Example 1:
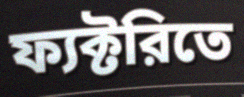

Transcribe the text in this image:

ফ্যক্টরিতে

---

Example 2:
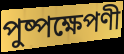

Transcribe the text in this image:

পুষ্পক্ষেপণী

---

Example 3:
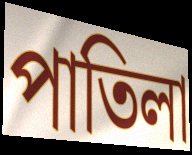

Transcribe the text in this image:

পাতিলা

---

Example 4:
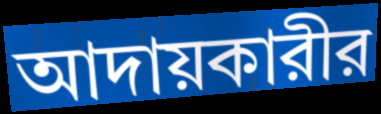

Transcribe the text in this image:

আদায়কারীর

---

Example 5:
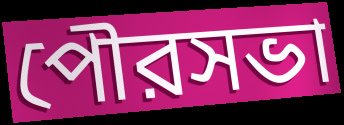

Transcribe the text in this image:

পৌরসভা